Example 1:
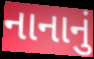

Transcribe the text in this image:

નાનાનું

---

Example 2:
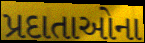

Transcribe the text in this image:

પ્રદાતાઓના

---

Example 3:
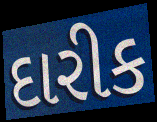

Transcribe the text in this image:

દારીક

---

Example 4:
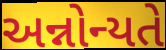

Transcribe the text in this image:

અન્નોન્યતે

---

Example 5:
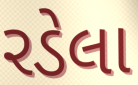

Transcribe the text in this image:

રડેલા